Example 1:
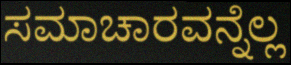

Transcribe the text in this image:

ಸಮಾಚಾರವನ್ನೆಲ್ಲ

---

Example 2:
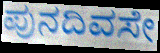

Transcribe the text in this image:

ಪುನದಿವಸೇ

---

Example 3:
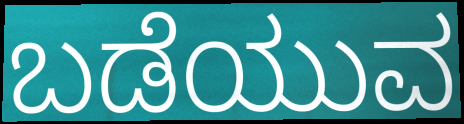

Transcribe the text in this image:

ಬಡೆಯುವ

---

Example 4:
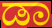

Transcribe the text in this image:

ಡಾ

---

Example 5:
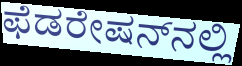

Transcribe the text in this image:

ಫೆಡರೇಷನ್‌ನಲ್ಲಿ